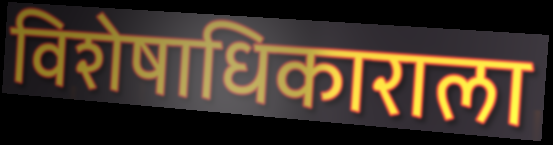
विशेषाधिकाराला